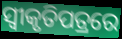
ସ୍ୱୀକୃତିପତ୍ରରେ